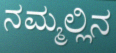
ನಮ್ಮಲ್ಲಿನ